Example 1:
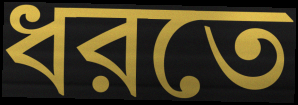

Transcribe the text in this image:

ধরতে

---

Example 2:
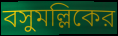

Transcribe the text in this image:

বসুমল্লিকের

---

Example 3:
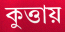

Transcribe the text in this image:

কুত্তায়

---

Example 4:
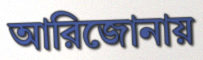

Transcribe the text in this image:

আরিজোনায়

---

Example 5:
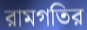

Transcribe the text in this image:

রামগতির